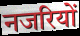
नजरियों